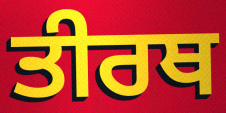
ਤੀਰਥ